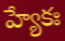
హ్యేకః